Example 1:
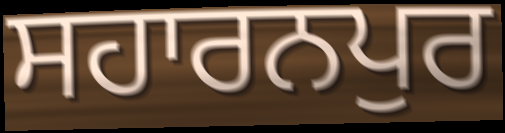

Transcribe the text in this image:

ਸਹਾਰਨਪੁਰ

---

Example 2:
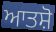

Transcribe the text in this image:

ਆਤਸ਼ੋ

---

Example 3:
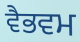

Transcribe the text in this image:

ਵੈਭਵਮ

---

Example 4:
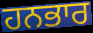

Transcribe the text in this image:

ਹਨਭਾਰ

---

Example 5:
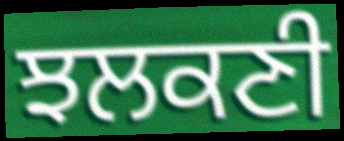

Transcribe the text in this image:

ਝਲਕਣੀ